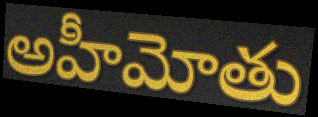
అహీమోతు